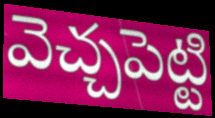
వెచ్చపెట్టి